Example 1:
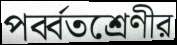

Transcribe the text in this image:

পর্ব্বতশ্রেণীর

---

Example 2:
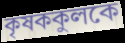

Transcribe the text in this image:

কৃষককুলকে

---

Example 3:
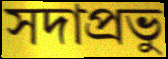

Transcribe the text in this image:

সদাপ্রভু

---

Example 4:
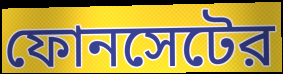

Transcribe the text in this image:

ফোনসেটের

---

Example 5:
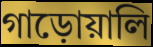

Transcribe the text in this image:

গাড়োয়ালি